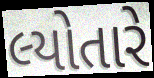
લ્યોતારે